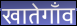
खातेगाँव